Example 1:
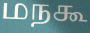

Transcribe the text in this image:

மநகூ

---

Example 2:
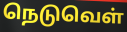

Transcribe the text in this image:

நெடுவெள்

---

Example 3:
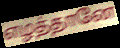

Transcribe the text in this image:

எழத்தானே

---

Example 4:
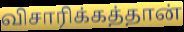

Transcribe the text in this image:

விசாரிக்கத்தான்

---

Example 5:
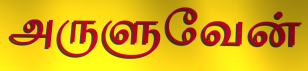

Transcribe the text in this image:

அருளுவேன்